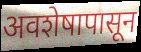
अवशेषापासून